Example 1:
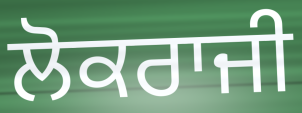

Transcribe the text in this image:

ਲੋਕਰਾਜੀ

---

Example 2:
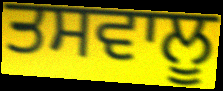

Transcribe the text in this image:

ਤਸਵਾਲੂ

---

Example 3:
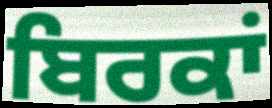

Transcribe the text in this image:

ਬਿਰਕਾਂ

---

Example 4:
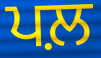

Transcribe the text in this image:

ਪਲ਼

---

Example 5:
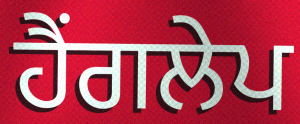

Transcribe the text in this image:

ਹੈਂਗਲੇਪ